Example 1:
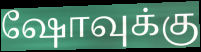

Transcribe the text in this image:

ஷோவுக்கு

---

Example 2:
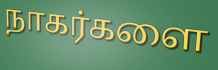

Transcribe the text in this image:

நாகர்களை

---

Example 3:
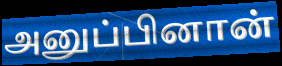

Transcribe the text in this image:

அனுப்பினான்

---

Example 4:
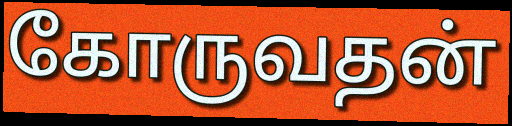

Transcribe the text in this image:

கோருவதன்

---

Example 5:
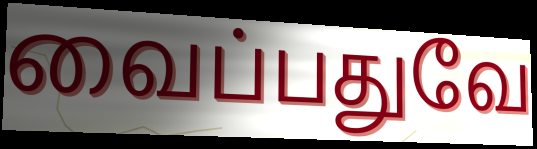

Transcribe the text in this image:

வைப்பதுவே